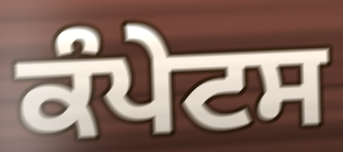
ਕੰਪੇਟਸ